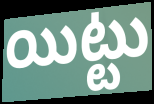
యిట్టు